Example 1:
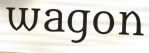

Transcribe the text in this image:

wagon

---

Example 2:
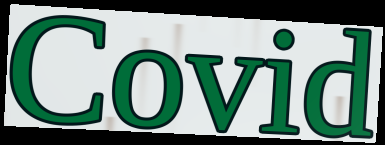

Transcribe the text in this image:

Covid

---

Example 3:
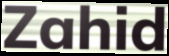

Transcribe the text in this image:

Zahid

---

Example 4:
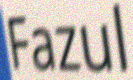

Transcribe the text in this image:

Fazul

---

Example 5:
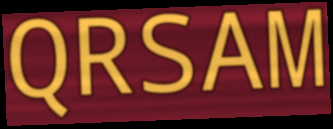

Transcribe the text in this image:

QRSAM